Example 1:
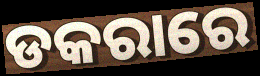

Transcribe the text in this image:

ଡକରାରେ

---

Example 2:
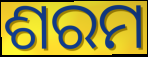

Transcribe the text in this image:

ଶରମ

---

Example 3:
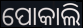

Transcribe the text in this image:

ପୋକାଲି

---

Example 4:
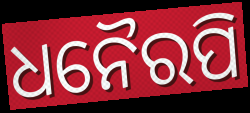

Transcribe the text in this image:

ଧନୈରପି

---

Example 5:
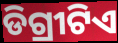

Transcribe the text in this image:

ଡିଗ୍ରୀଟିଏ